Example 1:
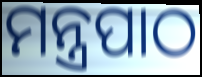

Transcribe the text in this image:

ମନ୍ତ୍ରପାଠ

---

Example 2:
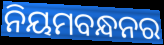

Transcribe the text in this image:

ନିୟମବନ୍ଧନର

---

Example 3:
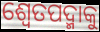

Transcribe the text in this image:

ଶ୍ୱେତପଦ୍ମାକୁ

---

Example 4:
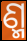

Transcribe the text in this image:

ଣ୍ମ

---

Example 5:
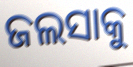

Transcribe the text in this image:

ଜଲସାକୁ